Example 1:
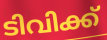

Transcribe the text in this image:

ടിവിക്ക്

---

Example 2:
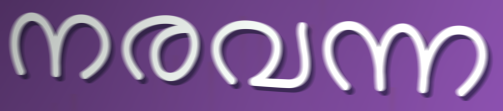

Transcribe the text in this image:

നരവന്ന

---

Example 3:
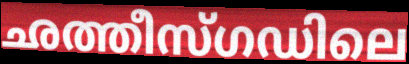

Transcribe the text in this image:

ഛത്തീസ്ഗഡിലെ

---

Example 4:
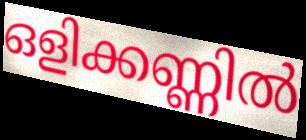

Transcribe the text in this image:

ഒളിക്കണ്ണിൽ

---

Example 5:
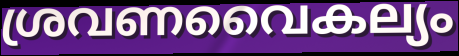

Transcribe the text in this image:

ശ്രവണവൈകല്യം